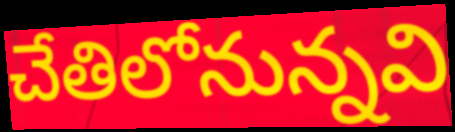
చేతిలోనున్నవి